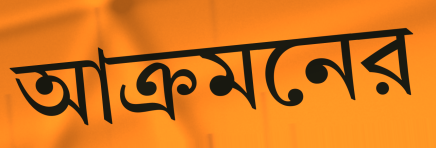
আক্রমনের